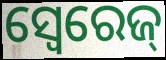
ସ୍ୱେରେଜ୍